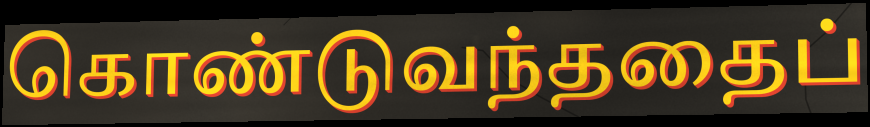
கொண்டுவந்ததைப்